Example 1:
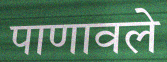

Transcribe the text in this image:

पाणावले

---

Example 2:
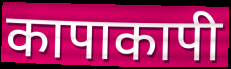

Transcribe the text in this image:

कापाकापी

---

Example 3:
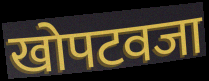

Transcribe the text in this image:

खोपटवजा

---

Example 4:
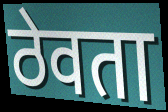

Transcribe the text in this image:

ठेवता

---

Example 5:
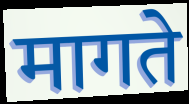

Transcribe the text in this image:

मागते